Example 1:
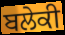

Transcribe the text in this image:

ਬਲੇਕੀ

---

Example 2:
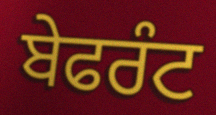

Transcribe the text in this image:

ਬੇਫਰੰਟ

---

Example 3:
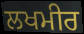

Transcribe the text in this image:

ਲਖਮੀਰ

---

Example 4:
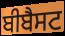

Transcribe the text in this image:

ਬੀਬੈਸਟ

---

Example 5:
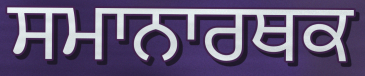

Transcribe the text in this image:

ਸਮਾਨਾਰਥਕ